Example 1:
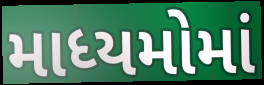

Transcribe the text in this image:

માધ્યમોમાં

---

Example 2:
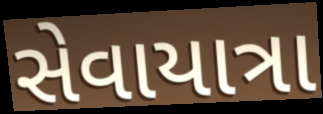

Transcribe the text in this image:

સેવાયાત્રા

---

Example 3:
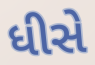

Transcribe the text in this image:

ધીસે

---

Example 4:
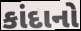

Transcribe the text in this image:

કાંદાનો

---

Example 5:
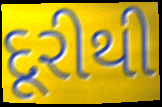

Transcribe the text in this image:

દૂરીથી